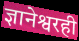
ज्ञानेश्वरही